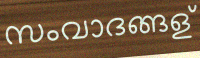
സംവാദങ്ങള്